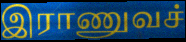
இராணுவச்